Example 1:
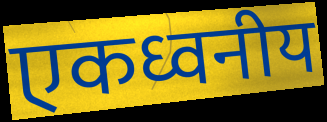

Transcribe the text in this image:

एकध्वनीय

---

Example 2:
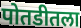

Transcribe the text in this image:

पोतडीतला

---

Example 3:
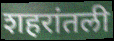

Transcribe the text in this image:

शहरांतली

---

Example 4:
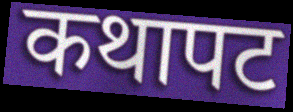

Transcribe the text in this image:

कथापट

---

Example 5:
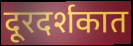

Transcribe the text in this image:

दूरदर्शकात